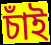
চাঁই